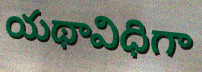
యథావిధిగా